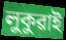
লুকুৱাই